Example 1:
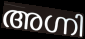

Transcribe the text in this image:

അഗ്നി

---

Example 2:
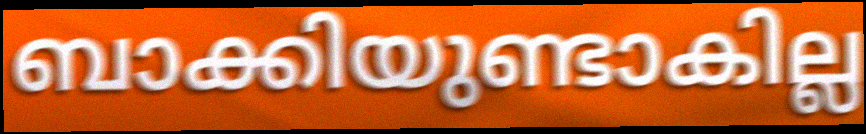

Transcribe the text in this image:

ബാക്കിയുണ്ടാകില്ല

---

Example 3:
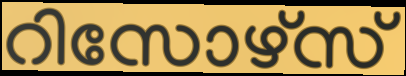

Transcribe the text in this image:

റിസോഴ്സ്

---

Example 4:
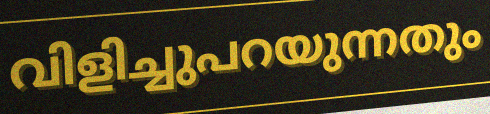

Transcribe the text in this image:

വിളിച്ചുപറയുന്നതും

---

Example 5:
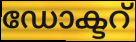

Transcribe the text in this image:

ഡോക്ടറ്